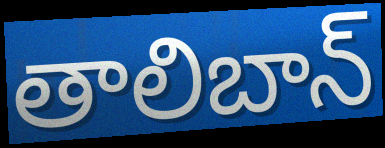
తాలిబాన్